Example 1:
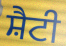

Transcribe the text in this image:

ਸ਼ੈਟੀ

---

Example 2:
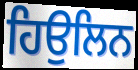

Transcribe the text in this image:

ਹਿਉਲਿਨ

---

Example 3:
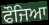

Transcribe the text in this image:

ਫੌਜਿਆ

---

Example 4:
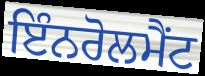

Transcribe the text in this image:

ਇੰਨਰੋਲਮੈਂਟ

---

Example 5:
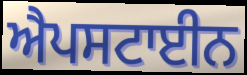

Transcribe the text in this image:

ਐਪਸਟਾਈਨ